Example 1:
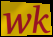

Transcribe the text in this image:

wk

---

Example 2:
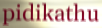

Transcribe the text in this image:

pidikathu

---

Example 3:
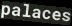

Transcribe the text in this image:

palaces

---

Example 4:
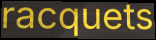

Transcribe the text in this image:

racquets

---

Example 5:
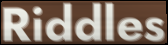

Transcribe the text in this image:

Riddles